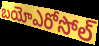
బయోఎరోసోల్